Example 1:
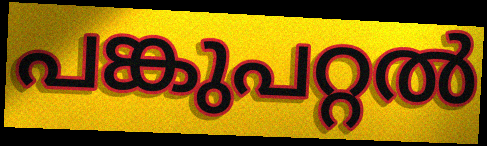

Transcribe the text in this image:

പങ്കുപറ്റൽ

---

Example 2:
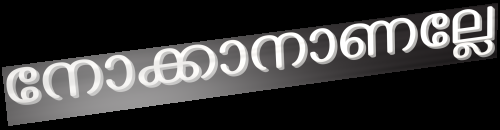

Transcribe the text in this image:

നോക്കാനാണല്ലേ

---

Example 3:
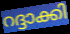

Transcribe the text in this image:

റദ്ദാക്കി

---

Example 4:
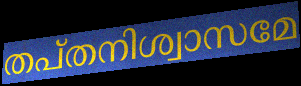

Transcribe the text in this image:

തപ്തനിശ്വാസമേ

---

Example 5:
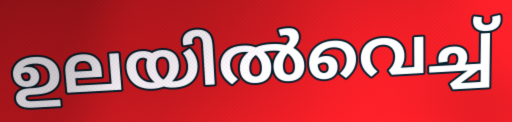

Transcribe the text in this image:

ഉലയിൽവെച്ച്